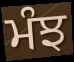
ਮੰਝ